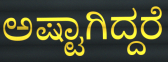
ಅಷ್ಟಾಗಿದ್ದರೆ